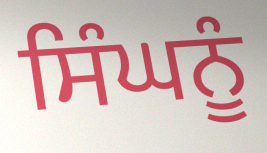
ਸਿੰਘਨੂੰ